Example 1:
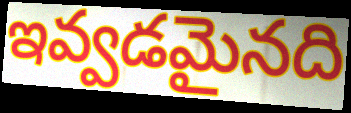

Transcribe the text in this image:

ఇవ్వడమైనది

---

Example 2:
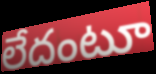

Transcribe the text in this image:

లేదంటూ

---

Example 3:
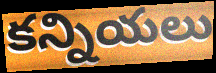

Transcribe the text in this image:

కన్నియలు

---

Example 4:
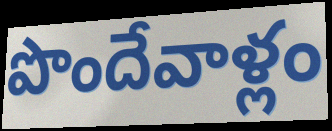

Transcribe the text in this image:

పొందేవాళ్లం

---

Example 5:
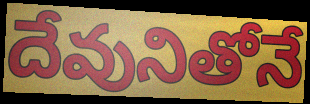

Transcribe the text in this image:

దేవునితోనే